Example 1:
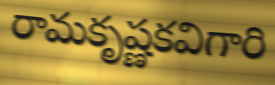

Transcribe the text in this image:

రామకృష్ణకవిగారి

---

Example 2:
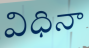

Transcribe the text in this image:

విధినా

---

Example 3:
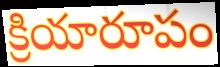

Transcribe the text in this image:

క్రియారూపం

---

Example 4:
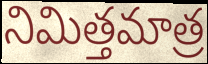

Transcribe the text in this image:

నిమిత్తమాత్ర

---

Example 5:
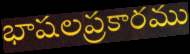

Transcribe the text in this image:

భాషలప్రకారము